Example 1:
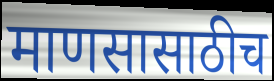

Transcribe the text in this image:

माणसासाठीच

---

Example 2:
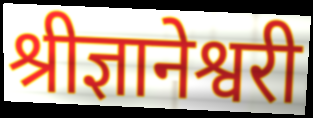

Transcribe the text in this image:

श्रीज्ञानेश्वरी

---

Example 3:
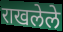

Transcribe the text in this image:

राखलेले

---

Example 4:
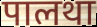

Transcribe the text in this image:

पालथा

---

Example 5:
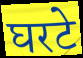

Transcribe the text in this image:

घरटे